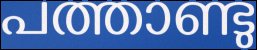
പത്താണ്ടു